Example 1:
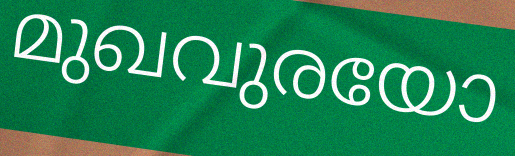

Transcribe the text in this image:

മുഖവുരയോ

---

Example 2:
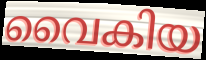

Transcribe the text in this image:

വൈകിയ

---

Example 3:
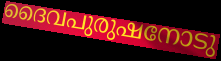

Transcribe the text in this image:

ദൈവപുരുഷനോടു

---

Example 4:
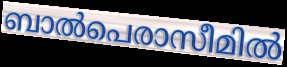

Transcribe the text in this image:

ബാൽപെരാസീമിൽ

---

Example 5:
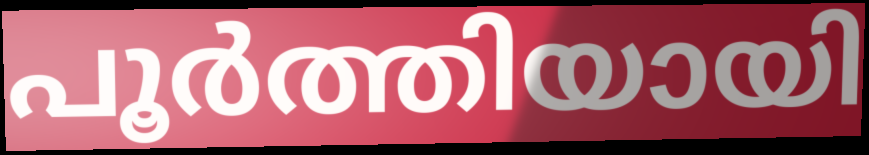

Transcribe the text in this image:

പൂർത്തിയായി